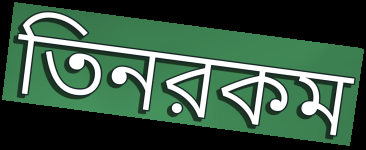
তিনরকম